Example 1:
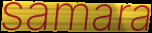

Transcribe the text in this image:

samara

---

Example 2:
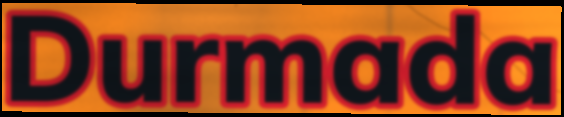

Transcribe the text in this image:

Durmada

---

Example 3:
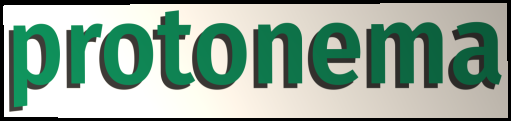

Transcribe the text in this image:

protonema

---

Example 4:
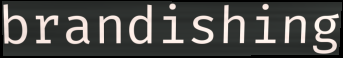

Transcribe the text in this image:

brandishing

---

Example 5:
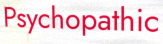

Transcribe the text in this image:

Psychopathic